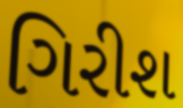
ગિરીશ